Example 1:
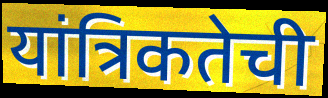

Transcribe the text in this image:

यांत्रिकतेची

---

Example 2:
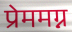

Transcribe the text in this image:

प्रेममग्न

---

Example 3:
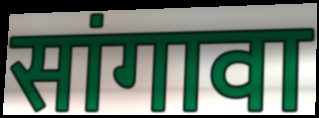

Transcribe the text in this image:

सांगावा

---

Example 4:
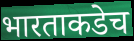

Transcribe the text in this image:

भारताकडेच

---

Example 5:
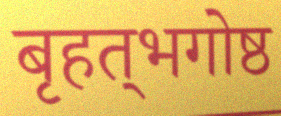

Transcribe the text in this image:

बृहत्‌भगोष्ठ